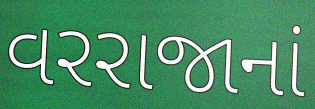
વરરાજાનાં